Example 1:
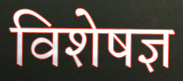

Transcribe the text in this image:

विशेषज्ञ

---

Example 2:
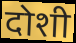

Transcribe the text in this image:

दोशी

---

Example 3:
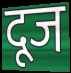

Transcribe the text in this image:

दूज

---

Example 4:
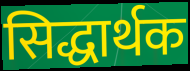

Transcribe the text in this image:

सिद्धार्थक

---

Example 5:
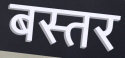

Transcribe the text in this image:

बस्तर